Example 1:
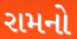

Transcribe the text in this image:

રામનો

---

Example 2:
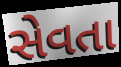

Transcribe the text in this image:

સેવતા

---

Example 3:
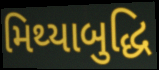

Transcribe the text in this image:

મિથ્યાબુદ્ધિ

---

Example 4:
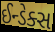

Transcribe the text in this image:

ઈન્ડેક્સ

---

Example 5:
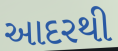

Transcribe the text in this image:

આદરથી